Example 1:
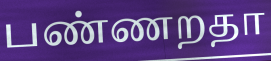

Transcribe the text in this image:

பண்ணறதா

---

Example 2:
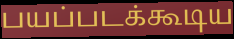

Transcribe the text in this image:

பயப்படக்கூடிய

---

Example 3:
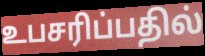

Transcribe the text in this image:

உபசரிப்பதில்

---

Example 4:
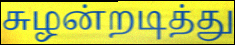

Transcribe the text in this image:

சுழன்றடித்து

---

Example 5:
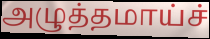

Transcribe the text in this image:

அழுத்தமாய்ச்